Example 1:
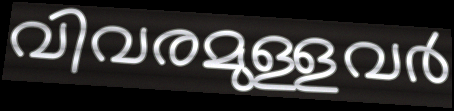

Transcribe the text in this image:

വിവരമുള്ളവർ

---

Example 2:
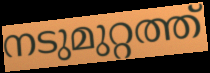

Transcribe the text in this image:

നടുമുറ്റത്ത്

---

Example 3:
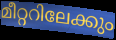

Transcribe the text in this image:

മീറ്ററിലേക്കും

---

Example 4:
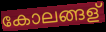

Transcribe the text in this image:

കോലങ്ങള്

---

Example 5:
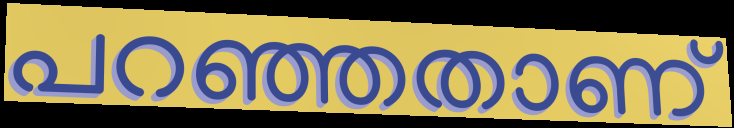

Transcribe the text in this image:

പറഞ്ഞതാണ്